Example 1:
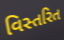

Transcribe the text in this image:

વિસ્તરિત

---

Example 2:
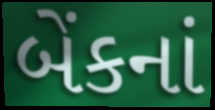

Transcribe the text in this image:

બેંકનાં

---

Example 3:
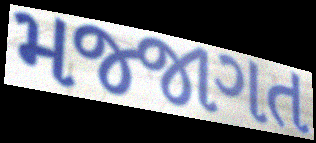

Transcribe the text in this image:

મજ્જાગત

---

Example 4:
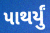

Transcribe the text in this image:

પાથર્યું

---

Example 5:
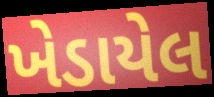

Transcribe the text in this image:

ખેડાયેલ